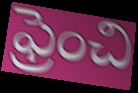
ఫ్రెంచి